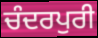
ਚੰਦਰਪੁਰੀ